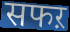
सफऱ